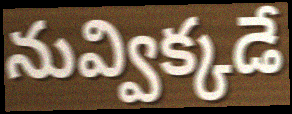
నువ్విక్కడే